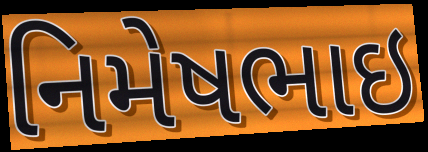
નિમેષભાઇ